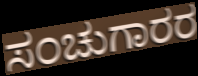
ಸಂಚುಗಾರರ